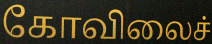
கோவிலைச்